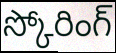
స్కోరింగ్